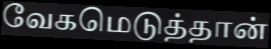
வேகமெடுத்தான்